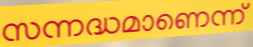
സന്നദ്ധമാണെന്ന്